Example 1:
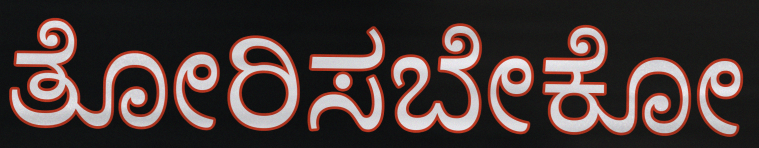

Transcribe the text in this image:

ತೋರಿಸಬೇಕೋ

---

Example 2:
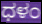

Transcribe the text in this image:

ಧಳಂ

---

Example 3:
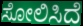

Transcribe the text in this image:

ಸೋಲಿಸಿದೆ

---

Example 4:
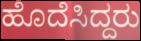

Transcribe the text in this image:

ಹೊದೆಸಿದ್ದರು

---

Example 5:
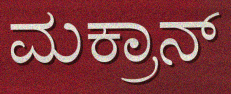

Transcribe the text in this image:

ಮಕ್ರಾನ್